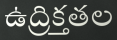
ఉద్రిక్తతల